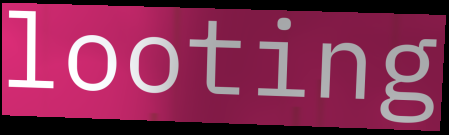
looting